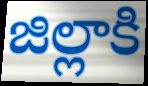
జిల్లాకి